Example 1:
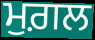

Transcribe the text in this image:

ਮੁਗ਼ਲ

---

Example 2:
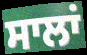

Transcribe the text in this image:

ਸਾਲਾਂ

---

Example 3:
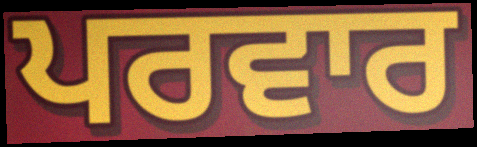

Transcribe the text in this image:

ਪਰਵਾਰ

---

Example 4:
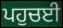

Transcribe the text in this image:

ਪਹੁਚਈ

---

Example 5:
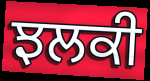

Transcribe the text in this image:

ਝਲਕੀ